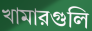
খামারগুলি